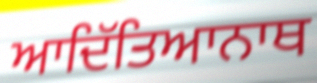
ਆਦਿੱਤਿਆਨਾਥ